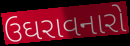
ઉઘરાવનારો